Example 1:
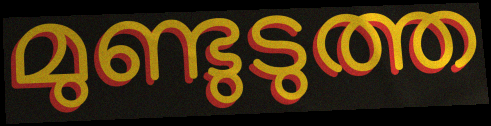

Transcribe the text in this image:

മുണ്ടുടുത്ത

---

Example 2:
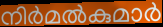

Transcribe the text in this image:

നിർമൽകുമാർ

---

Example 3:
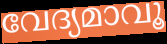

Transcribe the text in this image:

വേദ്യമാവൂ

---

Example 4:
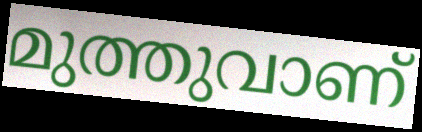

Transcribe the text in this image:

മുത്തുവാണ്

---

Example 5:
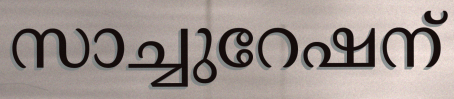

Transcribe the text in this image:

സാച്ചുറേഷന്